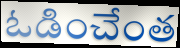
ఓడించేంత